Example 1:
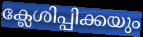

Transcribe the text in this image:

ക്ലേശിപ്പിക്കയും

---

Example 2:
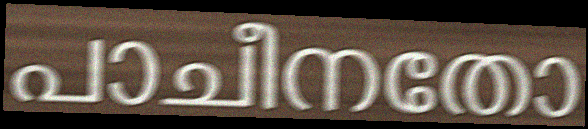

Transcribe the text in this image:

പാചീനതോ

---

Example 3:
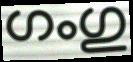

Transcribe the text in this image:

ഗംഗു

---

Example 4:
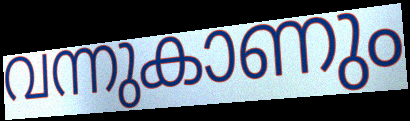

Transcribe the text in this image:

വന്നുകാണും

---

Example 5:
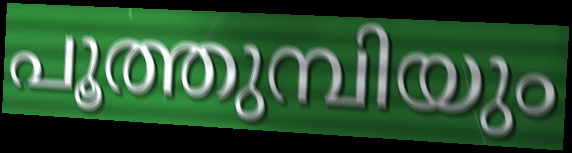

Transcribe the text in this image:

പൂത്തുമ്പിയും